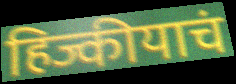
हिज्कीयाचं